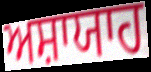
ਅਸ਼ਾਯਾਹ